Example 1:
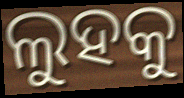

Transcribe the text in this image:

ଲୁହକୁ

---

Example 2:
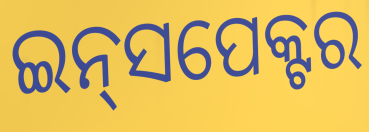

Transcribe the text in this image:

ଇନ୍‌ସପେକ୍ଟର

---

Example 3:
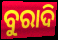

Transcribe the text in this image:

ବୁରାଦି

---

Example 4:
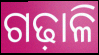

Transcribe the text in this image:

ଗଢ଼ାଳି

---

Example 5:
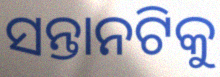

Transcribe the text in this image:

ସନ୍ତାନଟିକୁ